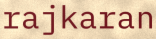
rajkaran